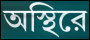
অস্থিরে